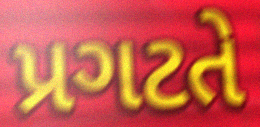
પ્રગટતે